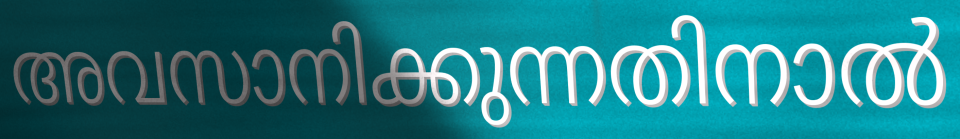
അവസാനിക്കുന്നതിനാൽ